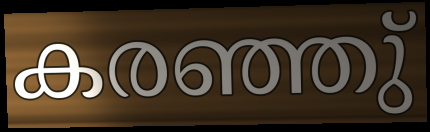
കരഞ്ഞു്